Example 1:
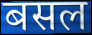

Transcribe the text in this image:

बसल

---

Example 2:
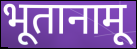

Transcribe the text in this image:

भूतानामू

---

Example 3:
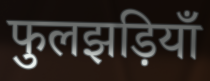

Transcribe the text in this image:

फुलझड़ियाँ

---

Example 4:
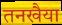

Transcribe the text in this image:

तनखैया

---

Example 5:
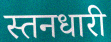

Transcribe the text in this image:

स्तनधारी